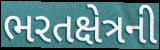
ભરતક્ષેત્રની